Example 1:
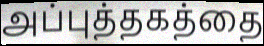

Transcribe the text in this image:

அப்புத்தகத்தை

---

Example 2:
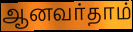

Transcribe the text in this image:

ஆனவர்தாம்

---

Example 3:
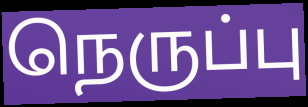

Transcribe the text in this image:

நெருப்பு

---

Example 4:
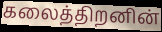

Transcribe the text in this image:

கலைத்திறனின்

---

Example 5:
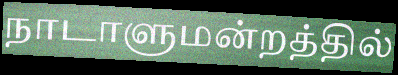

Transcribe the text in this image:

நாடாளுமன்றத்தில்